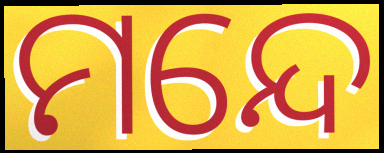
ମନ୍ଦେ